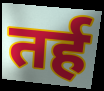
तर्ह